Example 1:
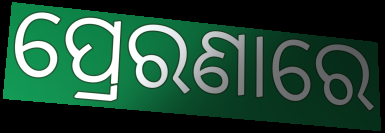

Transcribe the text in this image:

ପ୍ରେରଣାରେ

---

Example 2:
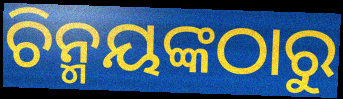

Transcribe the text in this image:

ଚିନ୍ମୟଙ୍କଠାରୁ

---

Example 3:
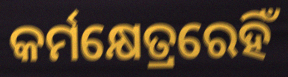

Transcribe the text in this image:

କର୍ମକ୍ଷେତ୍ରରେହିଁ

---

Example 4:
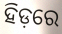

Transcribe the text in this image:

ହିଡ଼ରେ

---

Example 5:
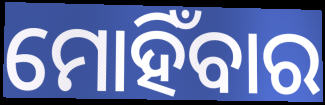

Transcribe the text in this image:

ମୋହିଁବାର